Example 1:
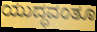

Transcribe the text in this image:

ಯುದ್ಧವಂತೂ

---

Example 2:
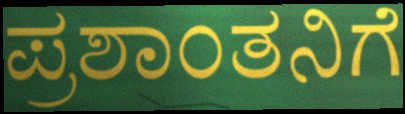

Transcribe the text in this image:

ಪ್ರಶಾಂತನಿಗೆ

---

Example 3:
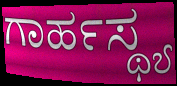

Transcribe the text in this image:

ಗಾರ್ಹಸ್ಥ್ಯ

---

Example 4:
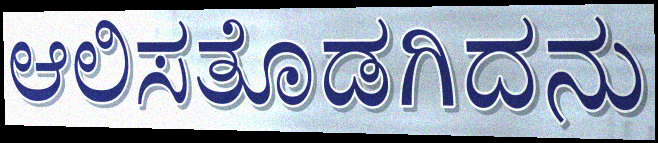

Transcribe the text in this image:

ಆಲಿಸತೊಡಗಿದನು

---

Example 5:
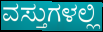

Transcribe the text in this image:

ವಸ್ತುಗಳಲ್ಲಿ